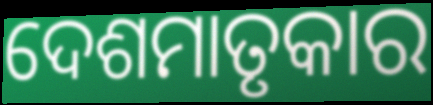
ଦେଶମାତୃକାର